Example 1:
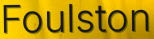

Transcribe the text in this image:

Foulston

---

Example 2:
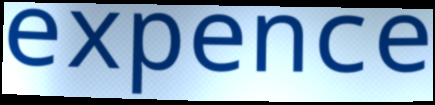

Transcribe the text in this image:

expence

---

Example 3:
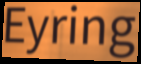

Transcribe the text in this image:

Eyring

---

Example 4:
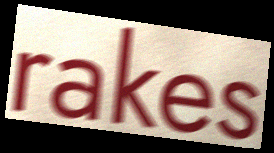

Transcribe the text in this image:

rakes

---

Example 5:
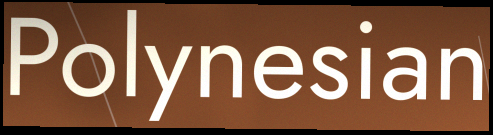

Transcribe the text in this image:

Polynesian